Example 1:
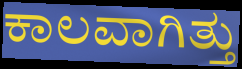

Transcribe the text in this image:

ಕಾಲವಾಗಿತ್ತು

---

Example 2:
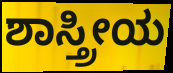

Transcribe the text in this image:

ಶಾಸ್ತ್ರೀಯ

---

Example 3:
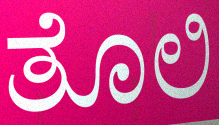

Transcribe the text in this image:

ತೊಲಿ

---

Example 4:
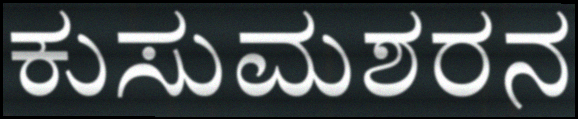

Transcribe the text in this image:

ಕುಸುಮಶರನ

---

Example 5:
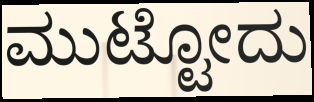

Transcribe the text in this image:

ಮುಟ್ಟೋದು